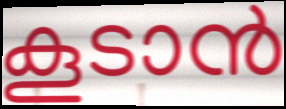
കൂടാൻ